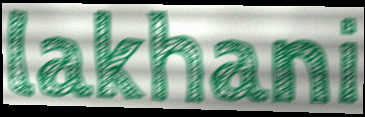
lakhani